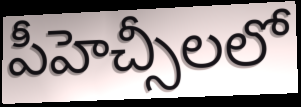
పీహెచ్సీలలో